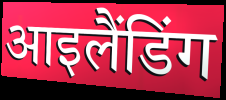
आइलैंडिंग